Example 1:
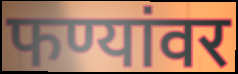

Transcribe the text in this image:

फण्यांवर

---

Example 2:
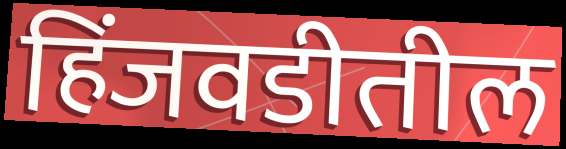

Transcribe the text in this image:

हिंजवडीतील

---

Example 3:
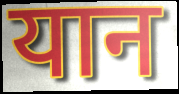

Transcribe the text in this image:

यान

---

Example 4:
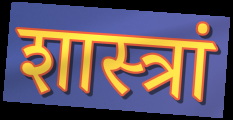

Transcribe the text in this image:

शास्त्रां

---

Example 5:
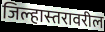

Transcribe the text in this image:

जिल्हास्तरावरील